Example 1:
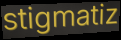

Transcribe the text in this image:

stigmatiz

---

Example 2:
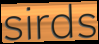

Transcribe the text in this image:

sirds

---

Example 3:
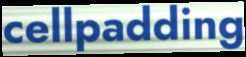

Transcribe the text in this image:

cellpadding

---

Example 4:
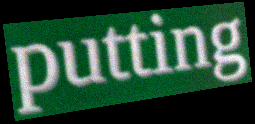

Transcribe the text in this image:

putting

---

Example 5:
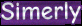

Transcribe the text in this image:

Simerly